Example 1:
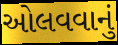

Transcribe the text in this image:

ઓલવવાનું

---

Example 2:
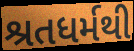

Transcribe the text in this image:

શ્રતધર્મથી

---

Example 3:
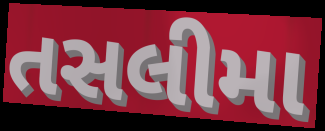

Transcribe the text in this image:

તસલીમા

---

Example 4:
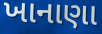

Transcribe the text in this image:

ખાનાણા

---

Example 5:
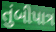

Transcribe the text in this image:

તુંબીપાત્ર